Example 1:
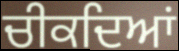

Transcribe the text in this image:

ਚੀਕਦਿਆਂ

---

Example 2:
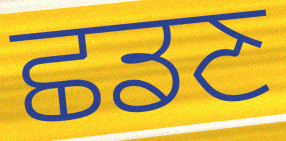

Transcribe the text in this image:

ਛਡਣ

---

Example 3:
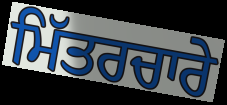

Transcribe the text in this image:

ਮਿੱਤਰਚਾਰੇ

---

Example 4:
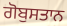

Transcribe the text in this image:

ਗੋਬੁਸਤਾਨ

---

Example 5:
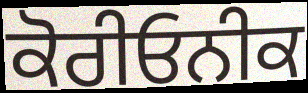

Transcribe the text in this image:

ਕੋਰੀਓਨੀਕ